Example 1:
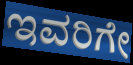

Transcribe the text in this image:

ಇವರಿಗೇ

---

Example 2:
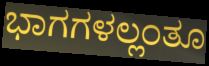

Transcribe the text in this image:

ಭಾಗಗಳಲ್ಲಂತೂ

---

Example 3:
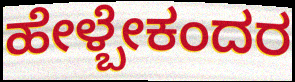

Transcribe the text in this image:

ಹೇಳ್ಬೇಕಂದರ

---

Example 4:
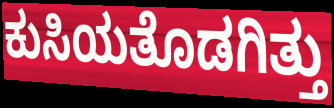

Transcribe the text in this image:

ಕುಸಿಯತೊಡಗಿತ್ತು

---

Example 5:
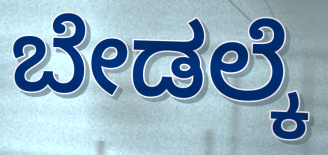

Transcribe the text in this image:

ಬೇಡಲ್ಕೆ